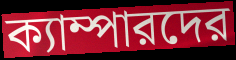
ক্যাম্পারদের